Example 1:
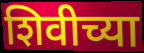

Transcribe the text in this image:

शिवीच्या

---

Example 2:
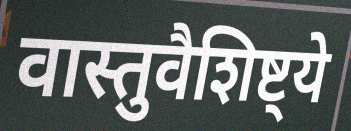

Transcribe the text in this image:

वास्तुवैशिष्ट्ये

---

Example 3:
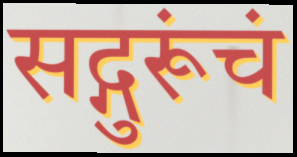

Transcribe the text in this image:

सद्गुरूंचं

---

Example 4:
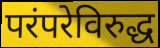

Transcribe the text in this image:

परंपरेविरुद्ध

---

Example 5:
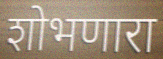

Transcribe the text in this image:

शोभणारा